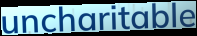
uncharitable